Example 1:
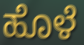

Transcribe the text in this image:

ಹೊಳೆ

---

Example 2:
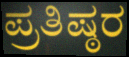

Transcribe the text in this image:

ಪ್ರತಿಷ್ಠರ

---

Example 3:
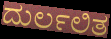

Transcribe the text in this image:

ದುರ್ಲಲಿತ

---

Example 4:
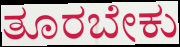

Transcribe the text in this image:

ತೂರಬೇಕು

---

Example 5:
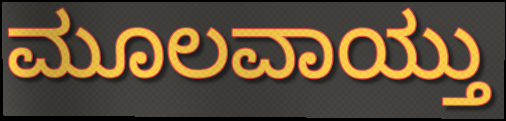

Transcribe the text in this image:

ಮೂಲವಾಯ್ತು